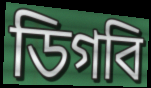
ডিগবি